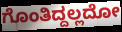
ಗೊಂತಿದ್ದಲ್ಲದೋ